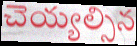
చెయ్యల్సిన